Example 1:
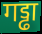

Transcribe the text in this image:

गड्ढा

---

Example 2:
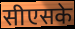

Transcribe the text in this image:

सीएसके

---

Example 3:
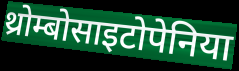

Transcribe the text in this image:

थ्रोम्बोसाइटोपेनिया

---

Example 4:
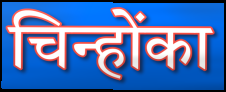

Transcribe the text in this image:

चिन्होंका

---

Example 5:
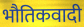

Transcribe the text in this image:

भौतिकवादी